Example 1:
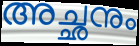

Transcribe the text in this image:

അച്ഛനും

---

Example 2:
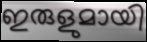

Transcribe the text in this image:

ഇരുളുമായി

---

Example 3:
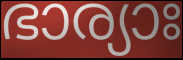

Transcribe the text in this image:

ഭാര്യാഃ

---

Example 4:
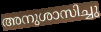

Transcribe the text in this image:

അനുശാസിച്ചു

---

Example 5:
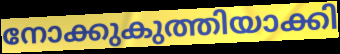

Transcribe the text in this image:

നോക്കുകുത്തിയാക്കി